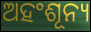
ଅହଂଶୂନ୍ୟ